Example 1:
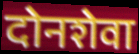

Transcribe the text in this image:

दोनशेवा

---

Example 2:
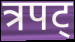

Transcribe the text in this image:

त्रपट्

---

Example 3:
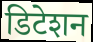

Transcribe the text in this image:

डिटेशन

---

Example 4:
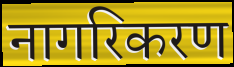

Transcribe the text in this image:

नागरिकरण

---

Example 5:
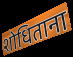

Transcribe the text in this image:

शोधिताना